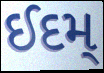
ઈદમ્